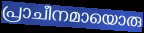
പ്രാചീനമായൊരു